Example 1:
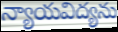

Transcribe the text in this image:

న్యాయవిద్యను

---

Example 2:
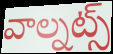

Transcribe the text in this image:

వాల్నట్స్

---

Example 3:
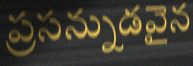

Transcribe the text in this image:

ప్రసన్నుడవైన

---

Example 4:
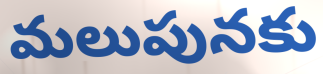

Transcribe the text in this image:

మలుపునకు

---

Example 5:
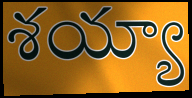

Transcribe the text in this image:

శయ్యా